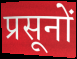
प्रसूनों